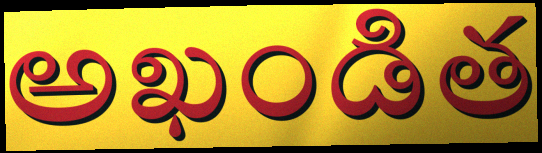
అఖండిత